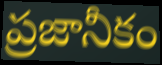
ప్రజానీకం